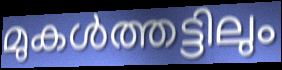
മുകൾത്തട്ടിലും